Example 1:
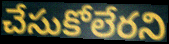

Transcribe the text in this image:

చేసుకోలేరని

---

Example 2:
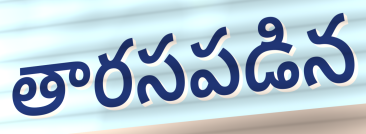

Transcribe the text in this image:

తారసపడిన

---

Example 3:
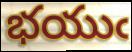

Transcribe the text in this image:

భయుఁ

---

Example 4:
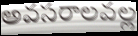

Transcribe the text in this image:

అవసరాలవల్ల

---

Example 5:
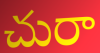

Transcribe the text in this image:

చురా